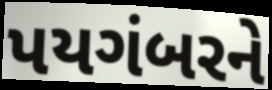
પયગંબરને